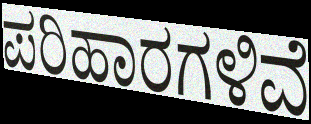
ಪರಿಹಾರಗಳಿವೆ